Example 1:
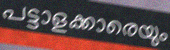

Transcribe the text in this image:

പട്ടാളക്കാരെയും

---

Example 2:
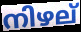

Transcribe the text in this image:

നിഴല്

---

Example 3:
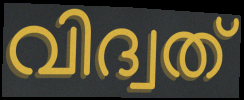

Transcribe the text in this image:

വിദ്വത്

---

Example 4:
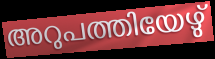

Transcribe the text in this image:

അറുപത്തിയേഴു്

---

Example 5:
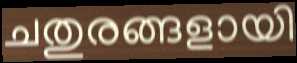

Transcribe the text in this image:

ചതുരങ്ങളായി